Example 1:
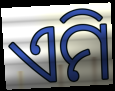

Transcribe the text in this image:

ଏମି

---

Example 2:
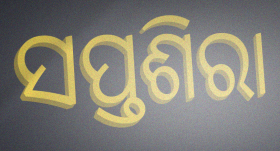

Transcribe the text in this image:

ସପ୍ତଶିରା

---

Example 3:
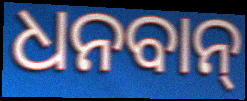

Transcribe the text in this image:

ଧନବାନ୍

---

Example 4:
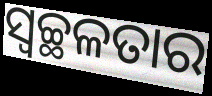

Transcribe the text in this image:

ସ୍ଵଚ୍ଛଳତାର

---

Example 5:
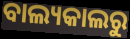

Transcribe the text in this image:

ବାଲ୍ୟକାଲରୁ